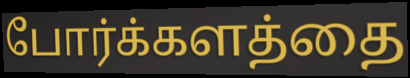
போர்க்களத்தை